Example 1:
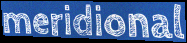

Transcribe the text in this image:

meridional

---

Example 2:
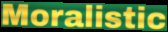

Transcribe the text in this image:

Moralistic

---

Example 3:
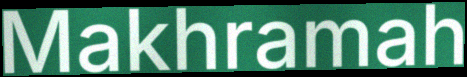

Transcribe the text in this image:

Makhramah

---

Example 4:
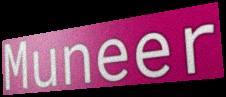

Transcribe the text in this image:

Muneer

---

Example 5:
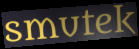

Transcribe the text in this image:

smutek